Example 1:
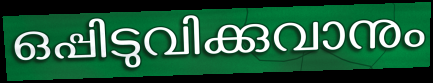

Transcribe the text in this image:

ഒപ്പിടുവിക്കുവാനും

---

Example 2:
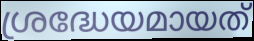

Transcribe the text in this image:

ശ്രദ്ധേയമായത്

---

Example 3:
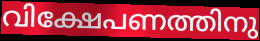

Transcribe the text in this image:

വിക്ഷേപണത്തിനു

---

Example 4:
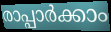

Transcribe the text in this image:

രാപ്പാർക്കാം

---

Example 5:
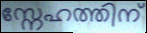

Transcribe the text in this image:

സ്നേഹത്തിന്